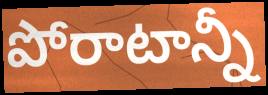
పోరాటాన్నీ